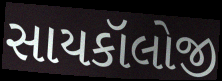
સાયકૉલોજી